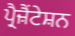
ਪ੍ਰੈਜ਼ੈਂਟੇਸ਼ਨ